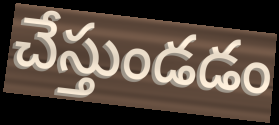
చేస్తుండడం